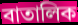
বাতালিক